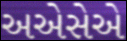
અએસેએ